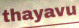
thayavu